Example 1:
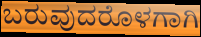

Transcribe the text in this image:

ಬರುವುದರೊಳಗಾಗಿ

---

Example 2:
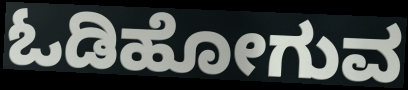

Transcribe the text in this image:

ಓಡಿಹೋಗುವ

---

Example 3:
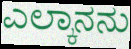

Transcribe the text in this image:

ಎಲ್ಕಾನನು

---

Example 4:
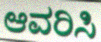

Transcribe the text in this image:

ಆವರಿಸಿ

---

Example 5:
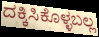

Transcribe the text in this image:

ದಕ್ಕಿಸಿಕೊಳ್ಳಬಲ್ಲ